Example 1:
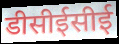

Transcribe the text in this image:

डीसीईसीई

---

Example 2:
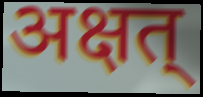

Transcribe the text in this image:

अक्षत्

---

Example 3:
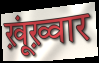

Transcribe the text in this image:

ख़ूंख़्वार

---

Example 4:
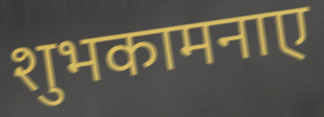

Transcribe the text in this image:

शुभकामनाए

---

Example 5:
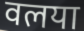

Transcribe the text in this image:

वलया